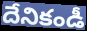
దేనికండీ